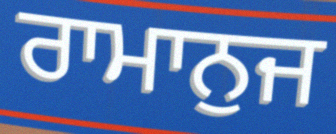
ਰਾਮਾਨੁਜ